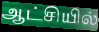
ஆட்சியில்